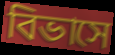
বিভাসে